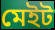
মেইট